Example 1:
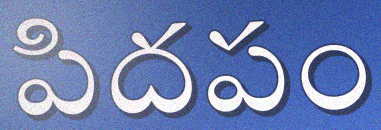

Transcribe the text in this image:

పిదపం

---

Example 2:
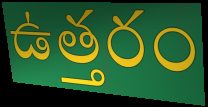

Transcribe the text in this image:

ఉత్తరం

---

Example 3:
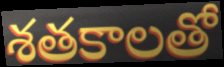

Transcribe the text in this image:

శతకాలతో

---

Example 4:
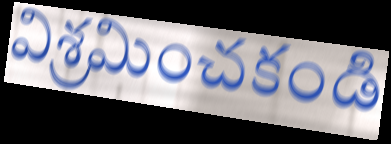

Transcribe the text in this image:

విశ్రమించకండి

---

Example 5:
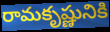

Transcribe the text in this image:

రామకృష్ణునికి